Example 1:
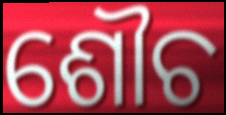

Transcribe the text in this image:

ଶୌଚ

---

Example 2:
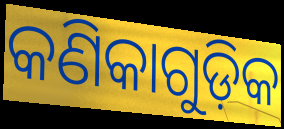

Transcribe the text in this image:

କଣିକାଗୁଡ଼ିକ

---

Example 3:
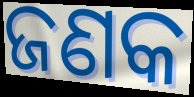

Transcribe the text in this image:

ଜଣକ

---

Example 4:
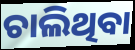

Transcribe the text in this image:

ଚାଲିଥିବା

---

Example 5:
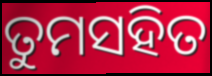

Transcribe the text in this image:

ତୁମସହିତ